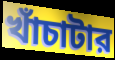
খাঁচাটার